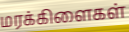
மரக்கிளைகள்